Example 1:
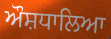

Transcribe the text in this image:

ਔਸ਼ਧਾਲਿਆ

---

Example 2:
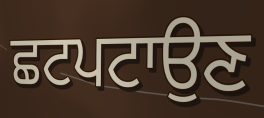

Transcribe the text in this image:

ਛਟਪਟਾਉਣ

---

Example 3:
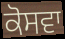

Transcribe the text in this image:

ਕੋਸਵਾ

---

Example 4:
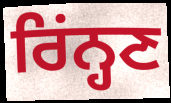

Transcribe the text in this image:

ਰਿਂਨ੍ਹਣ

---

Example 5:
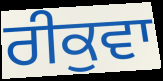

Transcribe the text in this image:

ਰੀਕੁਵਾ